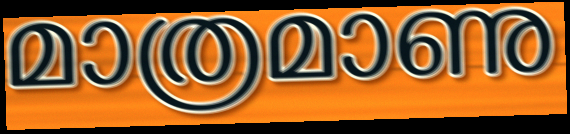
മാത്രമാണു